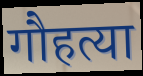
गौहत्या